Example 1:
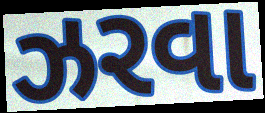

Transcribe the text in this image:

ઝરવા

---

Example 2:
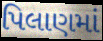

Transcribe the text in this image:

પિલાણમાં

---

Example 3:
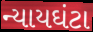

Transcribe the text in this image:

ન્યાયઘંટા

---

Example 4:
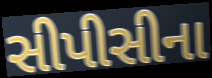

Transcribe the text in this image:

સીપીસીના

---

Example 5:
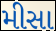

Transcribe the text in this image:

મીસા